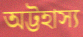
অট্টহাস্য